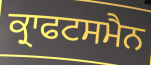
ਕ੍ਰਾਫਟਸਮੈਨ